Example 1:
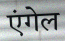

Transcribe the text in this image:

एंगेल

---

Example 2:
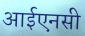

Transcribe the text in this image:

आईएनसी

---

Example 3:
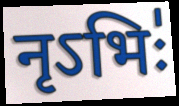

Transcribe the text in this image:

नृऽभिः॑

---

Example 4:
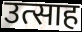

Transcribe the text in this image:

उत्‍साह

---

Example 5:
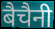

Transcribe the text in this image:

बैचैनी